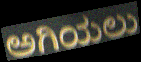
ಅಗಿಯಲು